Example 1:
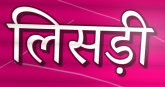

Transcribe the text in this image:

लिसड़ी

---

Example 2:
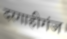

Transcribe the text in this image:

दरगाहीगंज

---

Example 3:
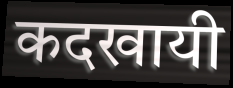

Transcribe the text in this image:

कदखायी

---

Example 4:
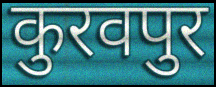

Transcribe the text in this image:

कुरवपुर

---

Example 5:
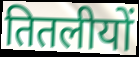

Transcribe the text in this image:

तितलीयों